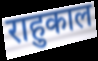
राहुकाल